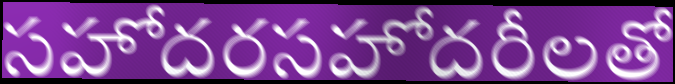
సహోదరసహోదరీలతో